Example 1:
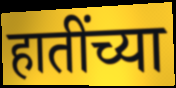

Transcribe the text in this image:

हातींच्या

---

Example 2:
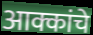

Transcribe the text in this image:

आक्कांचे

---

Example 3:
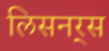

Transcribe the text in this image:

लिसनर्स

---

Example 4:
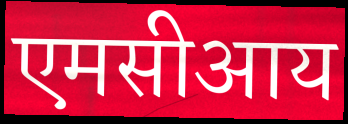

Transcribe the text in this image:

एमसीआय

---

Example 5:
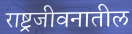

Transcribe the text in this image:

राष्ट्रजीवनातील